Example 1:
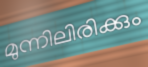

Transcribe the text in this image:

മുന്നിലിരിക്കും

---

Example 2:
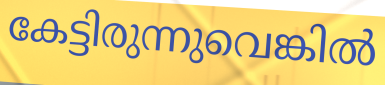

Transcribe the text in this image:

കേട്ടിരുന്നുവെങ്കിൽ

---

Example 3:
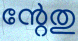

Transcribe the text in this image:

ന്റേതു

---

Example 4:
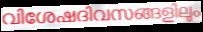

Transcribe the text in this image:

വിശേഷദിവസങ്ങളിലും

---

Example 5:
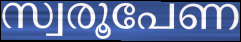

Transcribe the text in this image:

സ്വരൂപേണ